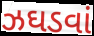
ઝઘડવાં